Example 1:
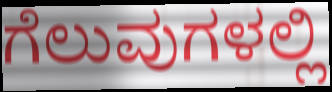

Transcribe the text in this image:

ಗೆಲುವುಗಳಲ್ಲಿ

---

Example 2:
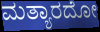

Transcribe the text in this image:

ಮತ್ಯಾರದೋ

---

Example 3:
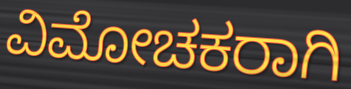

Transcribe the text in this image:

ವಿಮೋಚಕರಾಗಿ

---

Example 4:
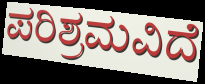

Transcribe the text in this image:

ಪರಿಶ್ರಮವಿದೆ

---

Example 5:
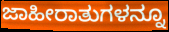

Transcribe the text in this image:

ಜಾಹೀರಾತುಗಳನ್ನೂ